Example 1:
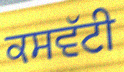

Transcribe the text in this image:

ਕਸਵੱਟੀ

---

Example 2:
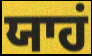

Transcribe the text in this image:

ਯਾਹਂ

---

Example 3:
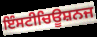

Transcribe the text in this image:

ਇੰਸਟੀਚਿਊਸ਼ਨਜ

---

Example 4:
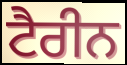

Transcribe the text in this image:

ਟੈਰੀਨ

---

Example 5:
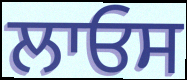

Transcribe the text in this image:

ਲਾਓਸ